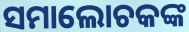
ସମାଲୋଚକଙ୍କ